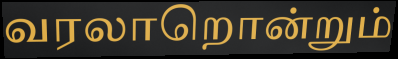
வரலாறொன்றும்